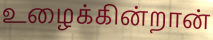
உழைக்கின்றான்